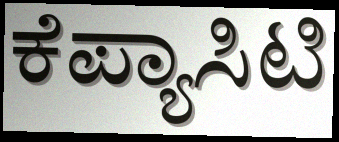
ಕೆಪ್ಯಾಸಿಟಿ